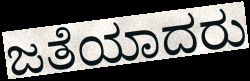
ಜತೆಯಾದರು